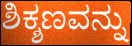
ಶಿಕ್ಶಣವನ್ನು